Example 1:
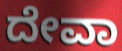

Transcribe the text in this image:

ದೇವಾ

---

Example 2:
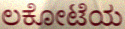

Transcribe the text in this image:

ಲಕೋಟೆಯ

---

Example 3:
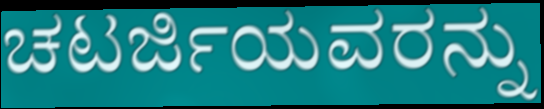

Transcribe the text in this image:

ಚಟರ್ಜಿಯವರನ್ನು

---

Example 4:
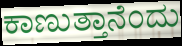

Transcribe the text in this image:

ಕಾಣುತ್ತಾನೆಂದು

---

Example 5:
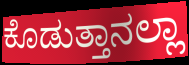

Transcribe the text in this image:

ಕೊಡುತ್ತಾನಲ್ಲಾ